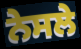
ਨੇਸਲੇ